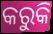
କରୁକି